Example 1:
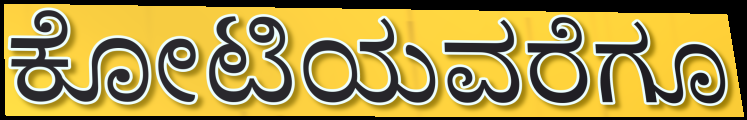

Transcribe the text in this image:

ಕೋಟಿಯವರೆಗೂ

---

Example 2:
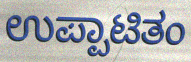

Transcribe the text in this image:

ಉಪ್ಪಾಟಿತಂ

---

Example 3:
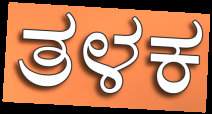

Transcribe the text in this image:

ತಳಕ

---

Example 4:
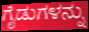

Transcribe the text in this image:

ಗೈಡುಗಳನ್ನು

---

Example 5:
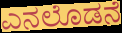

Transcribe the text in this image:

ಎನಲೊಡನೆ